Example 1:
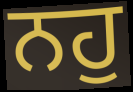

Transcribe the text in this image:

ਨਹੁ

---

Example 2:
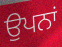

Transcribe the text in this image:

ਉਪਨਾਂ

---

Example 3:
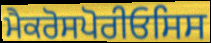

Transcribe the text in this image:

ਮੈਕਰੋਸਪੋਰੀਓਸਿਸ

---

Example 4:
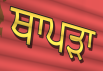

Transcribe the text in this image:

ਥਾਪੜਾ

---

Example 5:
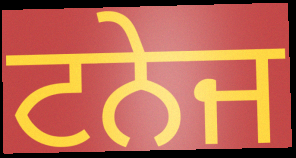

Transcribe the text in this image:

ਟਨੇਜ